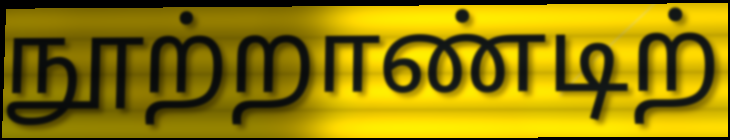
நூற்றாண்டிற்